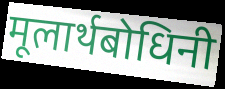
मूलार्थबोधिनी